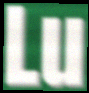
Lu